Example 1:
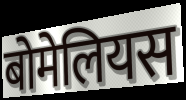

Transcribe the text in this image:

बोमेलियस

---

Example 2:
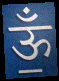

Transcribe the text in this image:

ऊँ॒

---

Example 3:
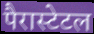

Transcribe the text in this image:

पैरास्टेटल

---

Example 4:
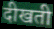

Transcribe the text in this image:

दीखती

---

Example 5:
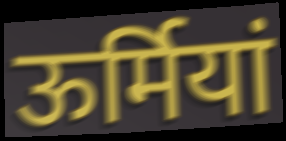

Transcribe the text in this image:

ऊर्मियां